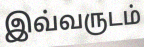
இவ்வருடம்